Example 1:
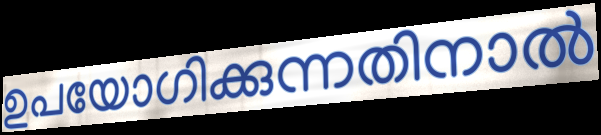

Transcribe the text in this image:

ഉപയോഗിക്കുന്നതിനാൽ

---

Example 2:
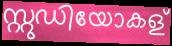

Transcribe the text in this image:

സ്റ്റുഡിയോകള്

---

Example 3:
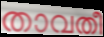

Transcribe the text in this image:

താവതീ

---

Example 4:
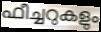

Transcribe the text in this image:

ഫീച്ചറുകളും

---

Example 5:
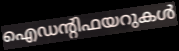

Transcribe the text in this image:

ഐഡന്റിഫയറുകൾ